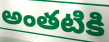
అంతటికి